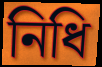
নিধি